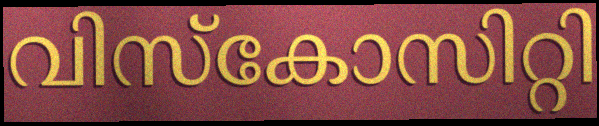
വിസ്കോസിറ്റി